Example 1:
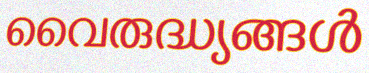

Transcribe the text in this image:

വൈരുദ്ധ്യങ്ങൾ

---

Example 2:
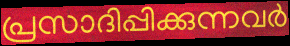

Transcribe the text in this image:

പ്രസാദിപ്പിക്കുന്നവർ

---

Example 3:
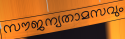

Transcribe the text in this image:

സൗജന്യതാമസവും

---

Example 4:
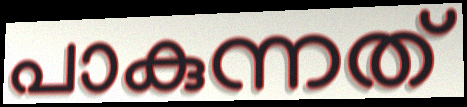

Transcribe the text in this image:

പാകുന്നത്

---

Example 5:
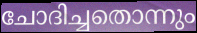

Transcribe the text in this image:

ചോദിച്ചതൊന്നും